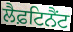
ਲੈਫ਼ਟਿਨੈਂਟ